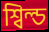
শ্বিল্ড